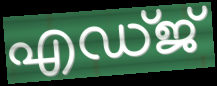
എഡ്ജ്